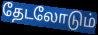
தேடலோடும்